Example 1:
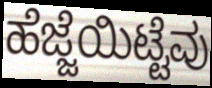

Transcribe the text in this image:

ಹೆಜ್ಜೆಯಿಟ್ಟೆವು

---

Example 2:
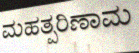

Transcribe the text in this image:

ಮಹತ್ಪರಿಣಾಮ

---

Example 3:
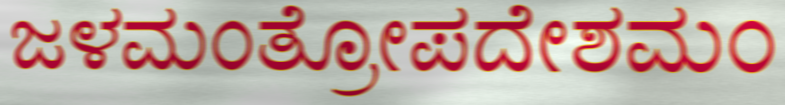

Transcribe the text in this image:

ಜಳಮಂತ್ರೋಪದೇಶಮಂ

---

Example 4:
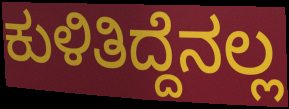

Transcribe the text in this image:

ಕುಳಿತಿದ್ದೆನಲ್ಲ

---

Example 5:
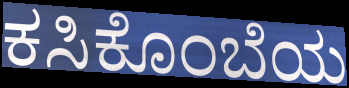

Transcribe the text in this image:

ಕಸಿಕೊಂಬೆಯ